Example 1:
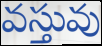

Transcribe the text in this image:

వస్తువు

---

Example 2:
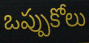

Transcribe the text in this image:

ఒప్పుకోలు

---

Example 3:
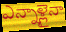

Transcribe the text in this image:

ఎన్నాళ్లైనా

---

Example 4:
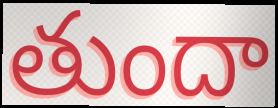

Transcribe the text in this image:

తుందా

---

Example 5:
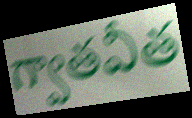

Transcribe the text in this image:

గ్వాతవీత